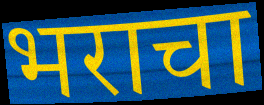
भराचा